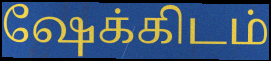
ஷேக்கிடம்